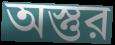
অস্তুর